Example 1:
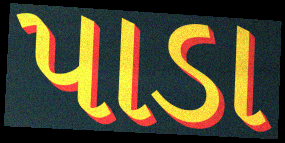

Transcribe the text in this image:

પાડા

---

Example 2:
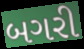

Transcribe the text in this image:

બગરી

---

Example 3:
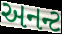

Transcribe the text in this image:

અનન્ટ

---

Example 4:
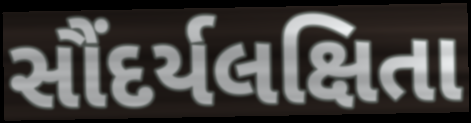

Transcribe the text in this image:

સૌંદર્યલક્ષિતા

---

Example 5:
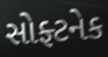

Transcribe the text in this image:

સોફ્ટનેક